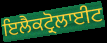
ਇਲੈਕਟ੍ਰੋਲਾਈਟ